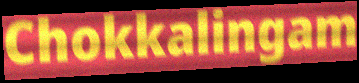
Chokkalingam